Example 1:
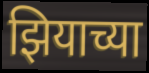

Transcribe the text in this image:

झियाच्या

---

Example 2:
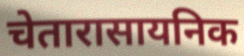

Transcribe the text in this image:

चेतारासायनिक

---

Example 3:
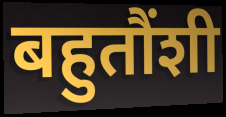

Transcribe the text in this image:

बहुतौंशी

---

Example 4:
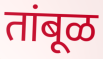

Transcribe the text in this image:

तांबूळ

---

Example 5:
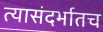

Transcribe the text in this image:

त्यासंदर्भातच